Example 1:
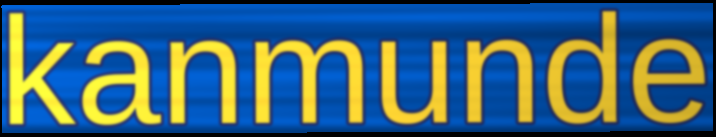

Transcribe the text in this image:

kanmunde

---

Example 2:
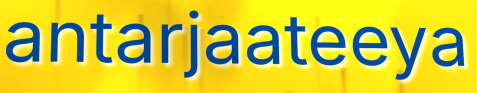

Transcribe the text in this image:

antarjaateeya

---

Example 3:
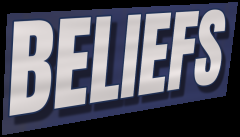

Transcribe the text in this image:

BELIEFS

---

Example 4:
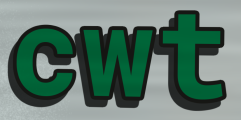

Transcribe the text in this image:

cwt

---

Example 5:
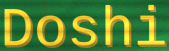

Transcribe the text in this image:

Doshi